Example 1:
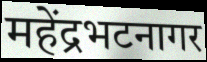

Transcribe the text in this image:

महेंद्रभटनागर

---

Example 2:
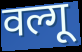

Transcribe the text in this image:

वल्गू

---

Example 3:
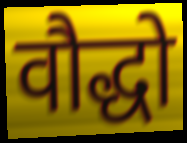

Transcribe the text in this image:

वौद्धो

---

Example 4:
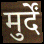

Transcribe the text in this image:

मुर्दें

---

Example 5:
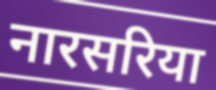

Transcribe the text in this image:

नारसरिया